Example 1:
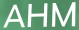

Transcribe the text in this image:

AHM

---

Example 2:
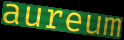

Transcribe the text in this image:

aureum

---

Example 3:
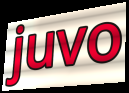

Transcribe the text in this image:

juvo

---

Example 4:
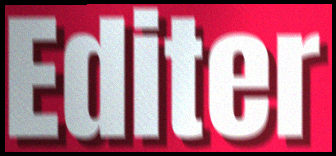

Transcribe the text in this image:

Editer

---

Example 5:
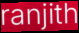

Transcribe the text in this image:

ranjith